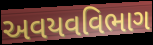
અવયવવિભાગ